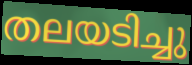
തലയടിച്ചു